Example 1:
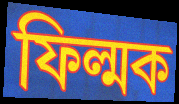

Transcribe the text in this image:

ফিল্মক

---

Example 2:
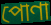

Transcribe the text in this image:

পোণা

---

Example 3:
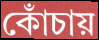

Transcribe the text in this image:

কোঁচায়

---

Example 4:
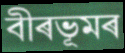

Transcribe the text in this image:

বীৰভূমৰ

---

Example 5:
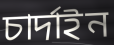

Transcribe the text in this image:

চাৰ্দাইন